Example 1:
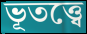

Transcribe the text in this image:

ভূতত্ত্বে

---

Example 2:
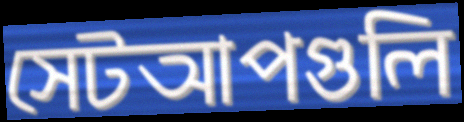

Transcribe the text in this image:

সেটআপগুলি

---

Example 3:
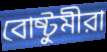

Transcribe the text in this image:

বোষ্টুমীরা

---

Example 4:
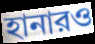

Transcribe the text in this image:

হানারও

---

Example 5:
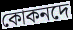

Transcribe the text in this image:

কোকনদে